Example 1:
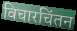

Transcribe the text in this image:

विचारचिंतन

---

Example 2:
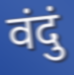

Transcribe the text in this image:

वंदुं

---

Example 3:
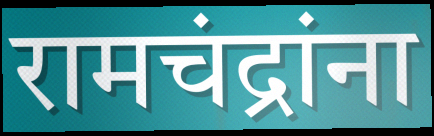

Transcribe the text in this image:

रामचंद्रांना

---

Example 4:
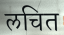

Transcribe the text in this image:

लचित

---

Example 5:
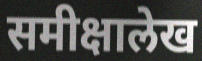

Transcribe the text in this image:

समीक्षालेख